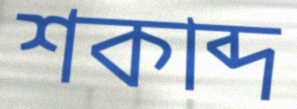
শকাব্দ